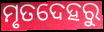
ମୃତଦେହରୁ